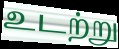
உடற்று